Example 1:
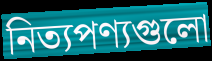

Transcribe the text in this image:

নিত্যপণ্যগুলো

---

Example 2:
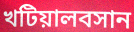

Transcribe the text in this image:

খটিয়ালবসান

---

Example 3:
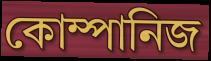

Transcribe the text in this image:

কোম্পানিজ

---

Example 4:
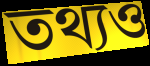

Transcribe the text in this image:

তথ্যও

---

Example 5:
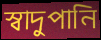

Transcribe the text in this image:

স্বাদুপানি